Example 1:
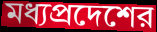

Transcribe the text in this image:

মধ্যপ্রদেশের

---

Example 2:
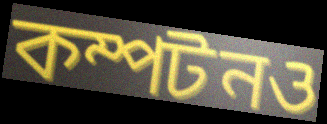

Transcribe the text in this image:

কম্পটনও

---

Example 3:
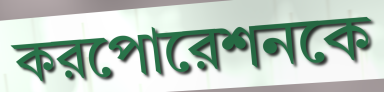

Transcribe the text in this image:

করপোরেশনকে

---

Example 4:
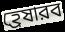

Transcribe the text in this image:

হ্রেষারব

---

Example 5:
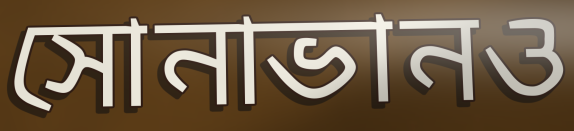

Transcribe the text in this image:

সোনাভানও